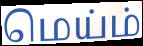
மெய்ம்